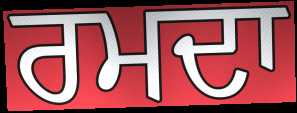
ਰਮਦਾ